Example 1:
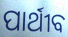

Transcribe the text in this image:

ପାର୍ଥୀବ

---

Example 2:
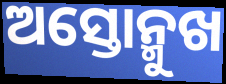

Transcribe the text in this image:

ଅସ୍ତୋନ୍ମୁଖ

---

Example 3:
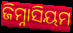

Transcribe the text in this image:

ଜିମ୍ନାସିୟମ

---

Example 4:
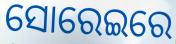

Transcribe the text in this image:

ସୋରେଇରେ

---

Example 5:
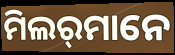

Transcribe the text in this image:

ମିଲର୍‌ମାନେ